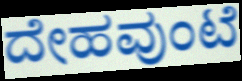
ದೇಹವುಂಟೆ